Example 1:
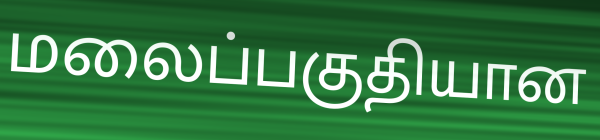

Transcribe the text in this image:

மலைப்பகுதியான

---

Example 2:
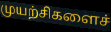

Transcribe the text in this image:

முயற்சிகளைச்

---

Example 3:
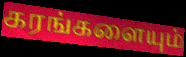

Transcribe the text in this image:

கரங்களையும்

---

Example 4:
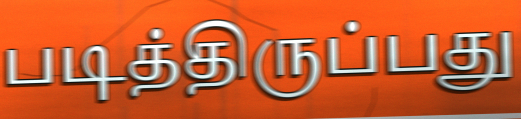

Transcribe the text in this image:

படித்திருப்பது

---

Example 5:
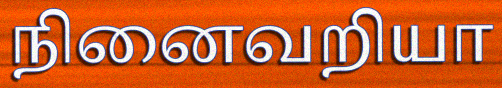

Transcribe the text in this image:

நினைவறியா